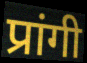
प्रांगी